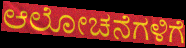
ಆಲೋಚನೆಗಳಿಗೆ